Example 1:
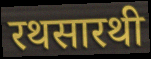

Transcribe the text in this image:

रथसारथी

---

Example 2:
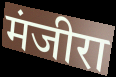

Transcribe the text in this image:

मंजीरा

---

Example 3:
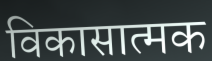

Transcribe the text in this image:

विकासात्मक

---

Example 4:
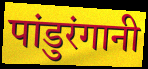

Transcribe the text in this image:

पांडुरंगानी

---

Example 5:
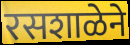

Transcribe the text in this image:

रसशाळेने